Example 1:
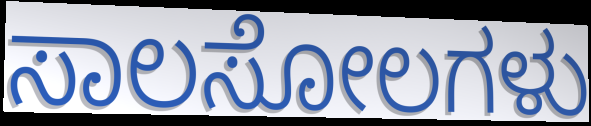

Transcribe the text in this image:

ಸಾಲಸೋಲಗಳು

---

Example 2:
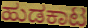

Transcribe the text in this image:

ಹುಡಕಾಟ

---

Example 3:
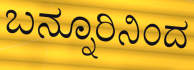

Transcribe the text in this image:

ಬನ್ನೂರಿನಿಂದ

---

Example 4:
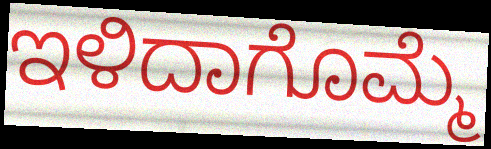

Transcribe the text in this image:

ಇಳಿದಾಗೊಮ್ಮೆ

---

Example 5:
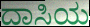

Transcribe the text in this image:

ದಾಸಿಯ